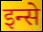
इन्से